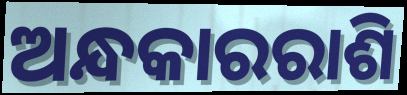
ଅନ୍ଧକାରରାଶି